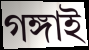
গঙ্গাই